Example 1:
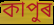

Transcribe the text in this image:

কাপুৰ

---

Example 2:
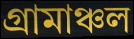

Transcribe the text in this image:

গ্ৰামাঞ্চল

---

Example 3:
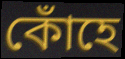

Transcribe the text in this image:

কোঁহে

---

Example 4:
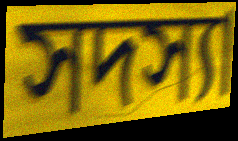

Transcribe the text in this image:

সদস্যা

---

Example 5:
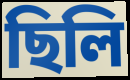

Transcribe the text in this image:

ছিলি